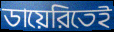
ডায়েরিতেই